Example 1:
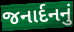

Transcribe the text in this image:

જનાર્દનનું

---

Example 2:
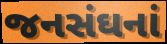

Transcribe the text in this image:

જનસંઘનાં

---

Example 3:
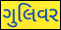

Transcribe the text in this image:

ગુલિવર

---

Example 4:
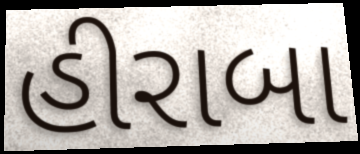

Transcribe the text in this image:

હીરાબા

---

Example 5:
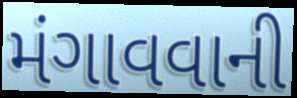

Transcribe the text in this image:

મંગાવવાની